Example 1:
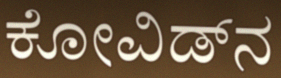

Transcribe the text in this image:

ಕೋವಿಡ್‌ನ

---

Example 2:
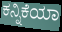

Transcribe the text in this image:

ಕನ್ನಿಕೆಯಾ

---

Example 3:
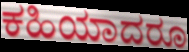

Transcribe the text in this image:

ಕಹಿಯಾದರೂ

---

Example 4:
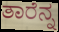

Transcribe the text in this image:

ತಾರೆನ್ನ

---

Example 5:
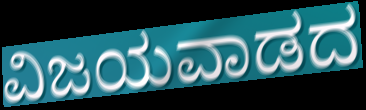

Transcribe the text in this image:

ವಿಜಯವಾಡದ